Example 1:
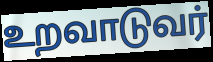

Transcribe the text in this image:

உறவாடுவர்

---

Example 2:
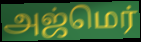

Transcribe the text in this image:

அஜ்மெர்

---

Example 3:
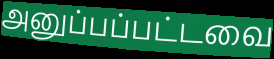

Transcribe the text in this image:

அனுப்பப்பட்டவை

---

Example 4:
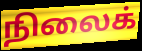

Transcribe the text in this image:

நிலைக்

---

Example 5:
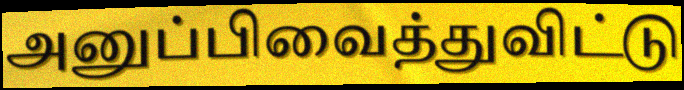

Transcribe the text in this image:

அனுப்பிவைத்துவிட்டு